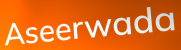
Aseerwada